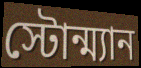
স্টোন্ম্যান